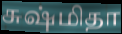
சுஷ்மிதா